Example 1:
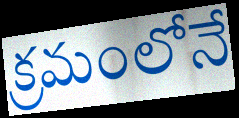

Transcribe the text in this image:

క్రమంలోనే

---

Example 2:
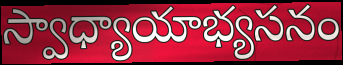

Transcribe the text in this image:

స్వాధ్యాయాభ్యసనం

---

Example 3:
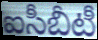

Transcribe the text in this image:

ఐసీబీటీ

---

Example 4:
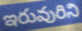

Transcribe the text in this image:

ఇరువురిని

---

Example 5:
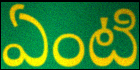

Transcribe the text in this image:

ఏంటి